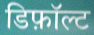
डिफ़ॉल्ट